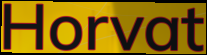
Horvat